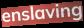
enslaving